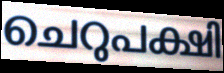
ചെറുപക്ഷി